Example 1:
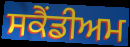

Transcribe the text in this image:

ਸਕੈਂਡੀਅਮ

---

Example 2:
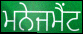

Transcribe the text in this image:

ਮਨੇਜਮੈਂਟ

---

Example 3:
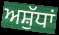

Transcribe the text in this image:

ਅਸ਼ੁੱਧਾਂ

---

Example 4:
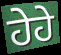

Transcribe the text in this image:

ਹੇਹੇ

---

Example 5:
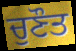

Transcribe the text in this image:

ਚੁਣੌਤ